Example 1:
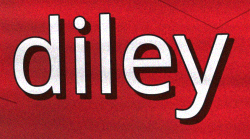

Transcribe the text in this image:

diley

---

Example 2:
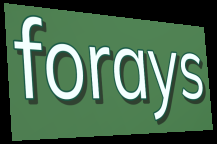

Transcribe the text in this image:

forays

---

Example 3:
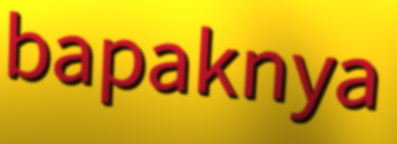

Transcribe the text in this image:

bapaknya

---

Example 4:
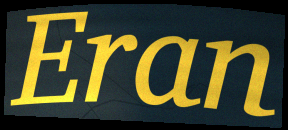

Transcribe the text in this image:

Eran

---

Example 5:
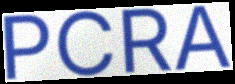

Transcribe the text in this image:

PCRA